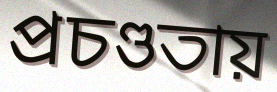
প্রচণ্ডতায়